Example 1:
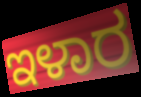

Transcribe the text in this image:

ಇಳಾರ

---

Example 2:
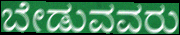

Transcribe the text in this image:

ಬೇಡುವವರು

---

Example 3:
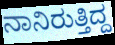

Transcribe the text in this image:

ನಾನಿರುತ್ತಿದ್ದ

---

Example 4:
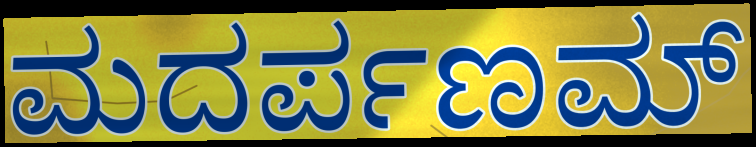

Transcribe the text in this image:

ಮದರ್ಪಣಮ್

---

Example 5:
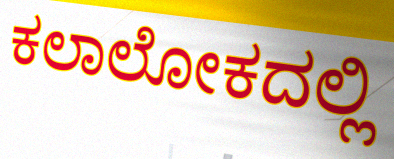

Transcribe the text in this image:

ಕಲಾಲೋಕದಲ್ಲಿ